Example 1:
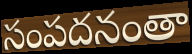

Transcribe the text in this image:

సంపదనంతా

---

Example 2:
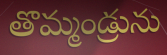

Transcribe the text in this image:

తొమ్మండ్రును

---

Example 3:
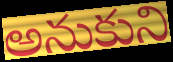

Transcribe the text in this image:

అనుకుని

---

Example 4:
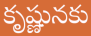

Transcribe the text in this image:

కృష్ణునకు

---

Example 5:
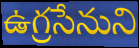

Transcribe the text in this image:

ఉగ్రసేనుని